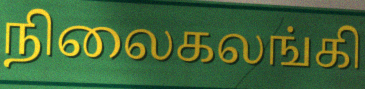
நிலைகலங்கி